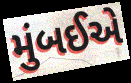
મુંબઈએ